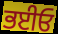
ਭਈਓ